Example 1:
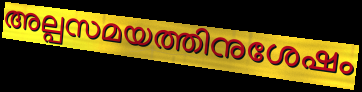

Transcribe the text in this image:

അല്പസമയത്തിനുശേഷം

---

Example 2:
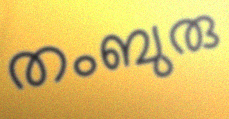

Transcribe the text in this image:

തംബുരു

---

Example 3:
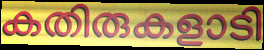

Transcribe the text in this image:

കതിരുകളാടി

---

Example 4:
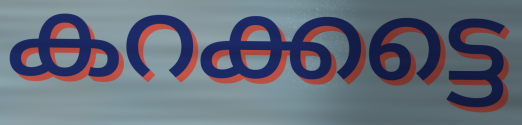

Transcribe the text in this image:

കറക്കട്ടെ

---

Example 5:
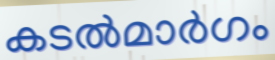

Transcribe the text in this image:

കടൽമാർഗം